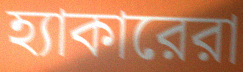
হ্যাকারেরা